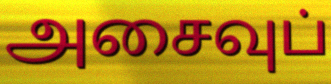
அசைவுப்